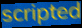
scripted